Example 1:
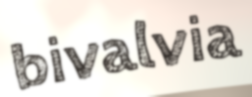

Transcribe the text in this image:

bivalvia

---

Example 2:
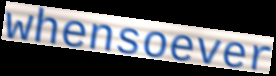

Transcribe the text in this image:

whensoever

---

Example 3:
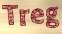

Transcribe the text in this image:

Treg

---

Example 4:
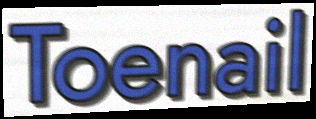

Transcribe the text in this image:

Toenail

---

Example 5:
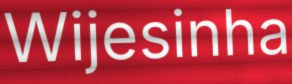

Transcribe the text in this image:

Wijesinha